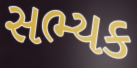
સભ્યક